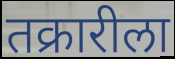
तक्रारीला